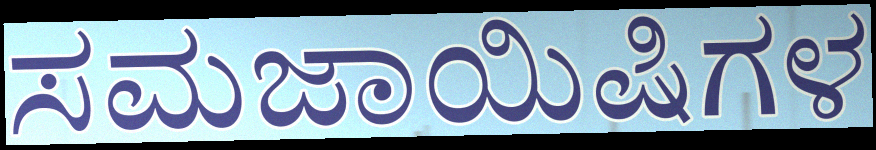
ಸಮಜಾಯಿಷಿಗಳ